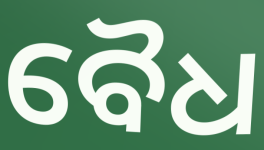
ବୈଧ